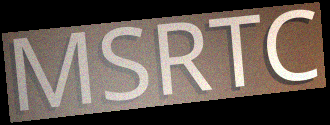
MSRTC